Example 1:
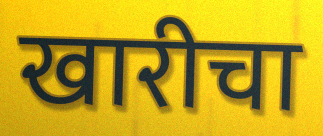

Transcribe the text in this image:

खारीचा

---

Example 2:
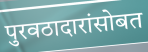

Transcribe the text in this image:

पुरवठादारांसोबत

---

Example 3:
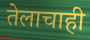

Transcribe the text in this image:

तेलाचाही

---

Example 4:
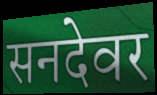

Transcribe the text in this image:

सनदेवर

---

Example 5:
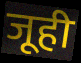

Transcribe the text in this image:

जूही